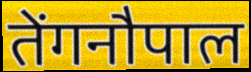
तेंगनौपाल